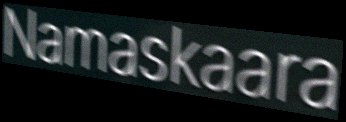
Namaskaara